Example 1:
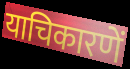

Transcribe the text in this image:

याचिकारणें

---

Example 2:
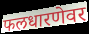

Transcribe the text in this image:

फलधारणेवर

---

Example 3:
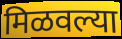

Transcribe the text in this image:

मिळवल्या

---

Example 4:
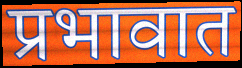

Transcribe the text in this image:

प्रभावात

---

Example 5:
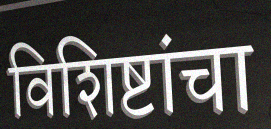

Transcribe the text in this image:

विशिष्टांचा